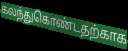
கலந்துகொண்டதற்காக